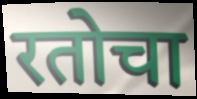
रतोचा